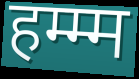
हम्म्म